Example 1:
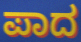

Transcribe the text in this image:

ಪಾದ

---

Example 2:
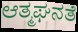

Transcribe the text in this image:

ಆತ್ಮಘನತೆ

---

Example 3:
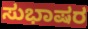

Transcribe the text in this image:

ಸುಭಾಷರ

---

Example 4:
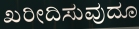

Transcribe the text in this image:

ಖರೀದಿಸುವುದೂ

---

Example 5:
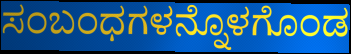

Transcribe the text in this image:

ಸಂಬಂಧಗಳನ್ನೊಳಗೊಂಡ